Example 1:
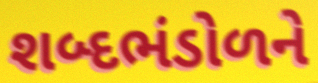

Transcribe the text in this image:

શબ્દભંડોળને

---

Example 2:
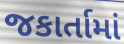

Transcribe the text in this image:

જકાર્તામાં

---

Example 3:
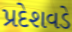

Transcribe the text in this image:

પ્રદેશવડે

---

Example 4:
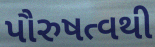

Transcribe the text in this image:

પૌરુષત્વથી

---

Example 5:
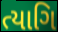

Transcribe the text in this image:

ત્યાગિ